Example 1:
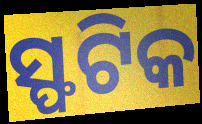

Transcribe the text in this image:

ସ୍ଫଟିକ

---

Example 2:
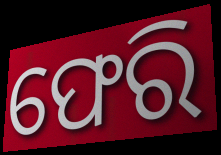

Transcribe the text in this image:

ଫେରି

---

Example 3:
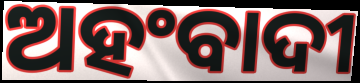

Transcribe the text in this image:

ଅହଂବାଦୀ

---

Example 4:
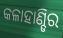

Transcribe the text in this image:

କଳାହାଣ୍ଡିର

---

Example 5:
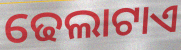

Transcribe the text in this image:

ଢେଲାଟାଏ